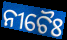
ନୀଚୈଃ